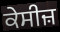
ਕੇਸੀਜ਼